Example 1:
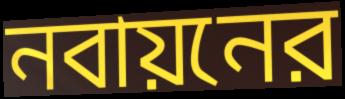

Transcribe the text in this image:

নবায়নের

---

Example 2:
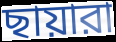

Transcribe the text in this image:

ছায়ারা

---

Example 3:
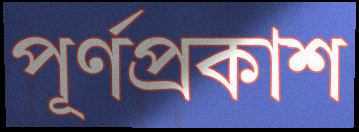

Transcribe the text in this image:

পূর্ণপ্রকাশ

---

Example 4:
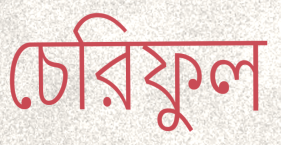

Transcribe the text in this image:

চেরিফুল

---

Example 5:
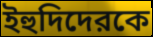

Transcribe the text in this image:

ইহুদিদেরকে